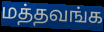
மத்தவங்க